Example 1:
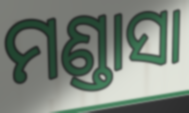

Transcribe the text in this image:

ମଣ୍ଡାସା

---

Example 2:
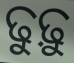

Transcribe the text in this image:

ଢୁଢ଼ୁ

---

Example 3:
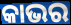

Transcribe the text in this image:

କାଭର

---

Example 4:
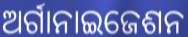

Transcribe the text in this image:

ଅର୍ଗାନାଇଜେଶନ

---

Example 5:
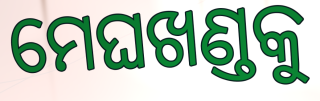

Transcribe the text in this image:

ମେଘଖଣ୍ଡକୁ